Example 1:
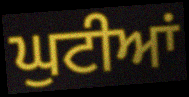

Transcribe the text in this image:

ਘੁਟੀਆਂ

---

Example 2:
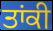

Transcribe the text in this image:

ਤਾਂਕੀ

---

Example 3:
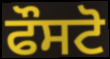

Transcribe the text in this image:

ਫੌਸਟੋ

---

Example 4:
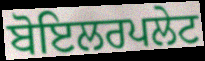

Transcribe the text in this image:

ਬੋਇਲਰਪਲੇਟ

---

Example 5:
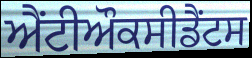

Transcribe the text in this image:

ਐਂਟੀਔਕਸੀਡੈਂਟਸ